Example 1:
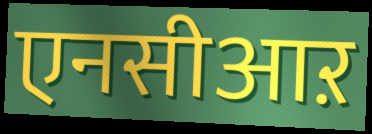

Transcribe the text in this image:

एनसीआऱ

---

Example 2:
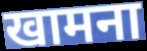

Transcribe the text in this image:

खामना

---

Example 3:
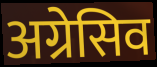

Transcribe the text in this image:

अग्रेसिव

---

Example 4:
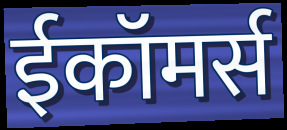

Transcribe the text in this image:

ईकॉमर्स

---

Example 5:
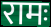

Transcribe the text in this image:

रामः